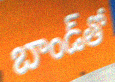
బాండ్‌తో